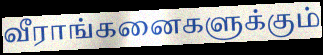
வீராங்கனைகளுக்கும்